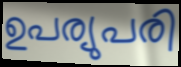
ഉപര്യുപരി